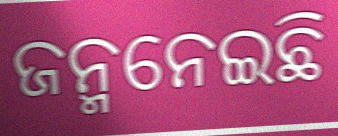
ଜନ୍ମନେଇଛି